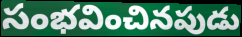
సంభవించినపుడు